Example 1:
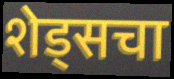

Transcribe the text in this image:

शेड्सचा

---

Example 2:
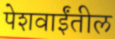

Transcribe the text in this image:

पेशवाईंतील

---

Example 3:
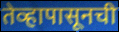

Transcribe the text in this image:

तेव्हापासूनची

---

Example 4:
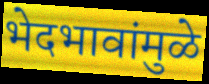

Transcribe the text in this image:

भेदभावांमुळे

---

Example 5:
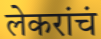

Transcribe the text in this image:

लेकरांचं